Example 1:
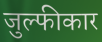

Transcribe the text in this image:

जुल्फीकार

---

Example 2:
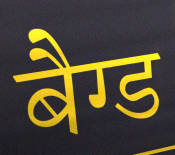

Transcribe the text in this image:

बैग्ड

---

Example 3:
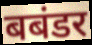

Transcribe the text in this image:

बबंडर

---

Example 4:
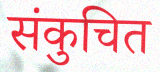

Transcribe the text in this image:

संकुचित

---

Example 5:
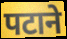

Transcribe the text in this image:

पटाने